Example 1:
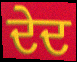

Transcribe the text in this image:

ਦੇਦ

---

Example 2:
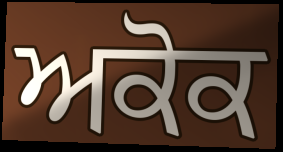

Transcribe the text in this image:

ਅਕੋਕ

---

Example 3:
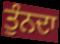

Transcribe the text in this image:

ਤੁੰਨਦਾ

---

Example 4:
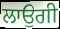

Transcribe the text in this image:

ਲਾਉਗੀ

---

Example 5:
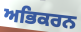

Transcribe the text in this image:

ਅਭਿਕਰਨ